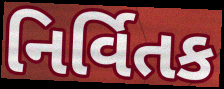
નિર્વિતક